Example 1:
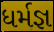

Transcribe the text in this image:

ધર્મજ્ઞ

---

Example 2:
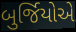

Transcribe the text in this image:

બુર્જિયોએ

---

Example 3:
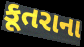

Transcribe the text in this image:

કૂતરાના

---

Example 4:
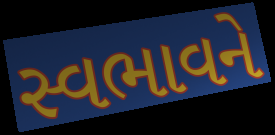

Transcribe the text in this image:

સ્વભાવને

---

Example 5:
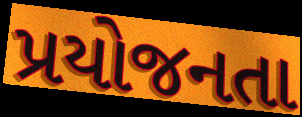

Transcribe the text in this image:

પ્રયોજનતા